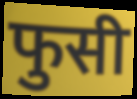
फुसी